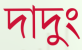
দাদুং